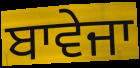
ਬਾਵੇਜਾ